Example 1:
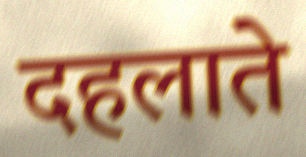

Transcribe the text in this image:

दहलाते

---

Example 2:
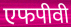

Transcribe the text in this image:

एफपीवी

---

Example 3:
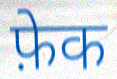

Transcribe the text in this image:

फ़ेक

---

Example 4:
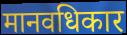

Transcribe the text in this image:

मानवधिकार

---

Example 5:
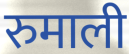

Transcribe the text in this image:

रुमाली